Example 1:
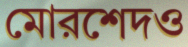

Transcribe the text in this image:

মোরশেদও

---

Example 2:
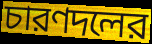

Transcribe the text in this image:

চারণদলের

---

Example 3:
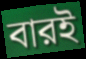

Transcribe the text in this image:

বারই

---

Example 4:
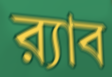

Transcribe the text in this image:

র‍্যাব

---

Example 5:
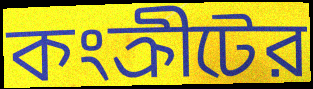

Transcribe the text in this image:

কংক্রীটের